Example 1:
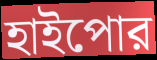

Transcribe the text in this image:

হাইপোর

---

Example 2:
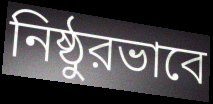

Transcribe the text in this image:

নিষ্ঠুরভাবে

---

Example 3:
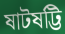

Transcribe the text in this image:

ষাটষট্টি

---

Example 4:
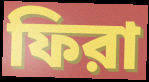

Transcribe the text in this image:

ফিরা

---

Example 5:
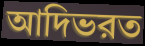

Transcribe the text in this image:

আদিভরত